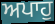
ਅਪਾਹੁ